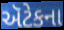
ઍટેકના